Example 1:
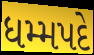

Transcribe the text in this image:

ધમ્મપદે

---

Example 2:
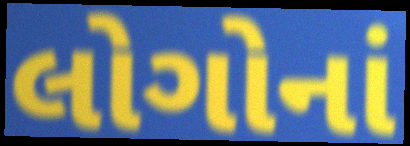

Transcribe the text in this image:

લોગોનાં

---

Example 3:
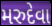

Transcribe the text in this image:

મરુદેવા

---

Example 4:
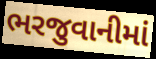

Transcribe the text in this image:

ભરજુવાનીમાં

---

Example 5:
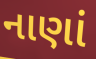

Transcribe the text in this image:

નાણાં